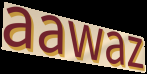
aawaz